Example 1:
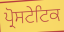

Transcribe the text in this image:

ਪ੍ਰੋਸਟੇਟਿਕ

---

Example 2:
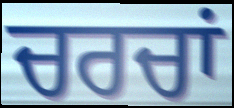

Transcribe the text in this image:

ਚਰਚਾਂ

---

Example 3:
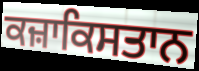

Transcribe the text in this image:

ਕਜ਼ਾਕਿਸਤਾਨ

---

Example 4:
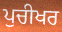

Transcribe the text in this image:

ਪੁਚੀਖਰ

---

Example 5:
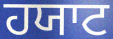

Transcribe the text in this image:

ਹਯਾਟ